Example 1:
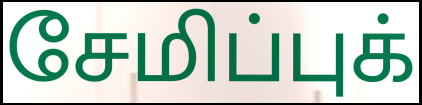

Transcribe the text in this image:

சேமிப்புக்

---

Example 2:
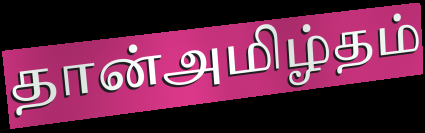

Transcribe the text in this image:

தான்அமிழ்தம்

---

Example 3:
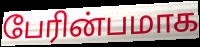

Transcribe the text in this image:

பேரின்பமாக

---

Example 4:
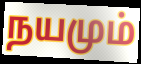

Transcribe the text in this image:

நயமும்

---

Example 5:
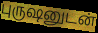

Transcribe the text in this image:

புருஷனுடன்